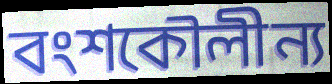
বংশকৌলীন্য